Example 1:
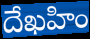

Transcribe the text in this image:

దేఖహిం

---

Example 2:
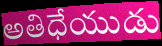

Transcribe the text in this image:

అతిధేయుడు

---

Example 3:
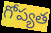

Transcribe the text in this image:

గోప్యత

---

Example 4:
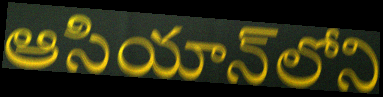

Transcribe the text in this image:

ఆసియాన్‌లోని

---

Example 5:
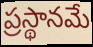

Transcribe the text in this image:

ప్రస్థానమే